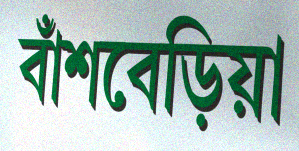
বাঁশবেড়িয়া